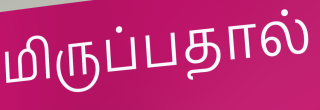
மிருப்பதால்